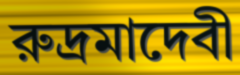
রুদ্রমাদেবী